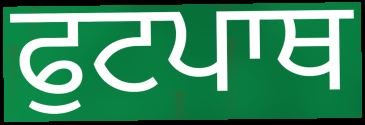
ਫੁਟਪਾਥ